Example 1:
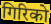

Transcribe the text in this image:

गिरिको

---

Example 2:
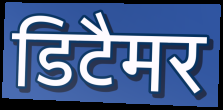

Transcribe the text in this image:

डिटैमर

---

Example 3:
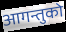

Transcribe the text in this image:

आगन्तुको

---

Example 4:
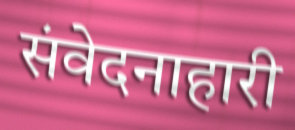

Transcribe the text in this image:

संवेदनाहारी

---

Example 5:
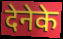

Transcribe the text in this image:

देनेके